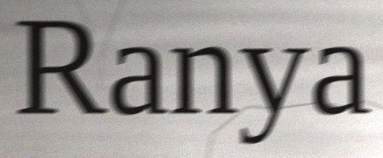
Ranya